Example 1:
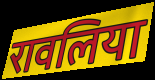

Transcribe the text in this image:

रावलिया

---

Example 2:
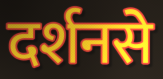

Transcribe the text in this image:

दर्शनसे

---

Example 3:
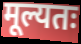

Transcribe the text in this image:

मूल्यतः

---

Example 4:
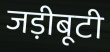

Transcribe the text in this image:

जड़ीबूटी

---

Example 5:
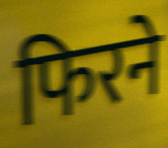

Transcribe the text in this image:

फिरने